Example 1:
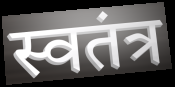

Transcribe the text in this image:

स्‍वतंत्र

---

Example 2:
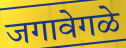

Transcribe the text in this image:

जगावेगळे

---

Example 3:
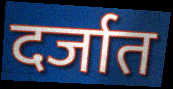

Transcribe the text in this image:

दर्जात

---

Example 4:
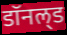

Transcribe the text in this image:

डॉनल्ड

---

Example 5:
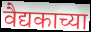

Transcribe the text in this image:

वैद्यकाच्या